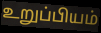
உறுப்பியம்